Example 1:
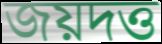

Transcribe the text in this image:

জয়দত্ত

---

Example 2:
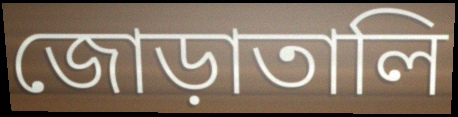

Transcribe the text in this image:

জোড়াতালি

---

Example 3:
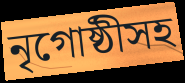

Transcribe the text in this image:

নৃগোষ্ঠীসহ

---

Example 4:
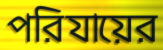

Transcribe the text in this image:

পরিযায়ের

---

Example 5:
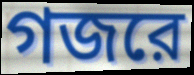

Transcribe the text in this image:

গজরে